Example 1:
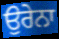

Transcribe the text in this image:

ਉਰੇਨਾ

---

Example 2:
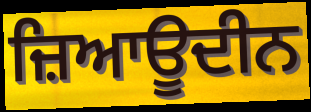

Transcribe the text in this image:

ਜ਼ਿਆਊਦੀਨ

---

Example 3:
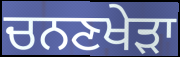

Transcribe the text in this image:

ਚਨਣਖੇੜਾ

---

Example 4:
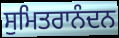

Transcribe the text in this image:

ਸੁਮਿਤਰਾਨੰਦਨ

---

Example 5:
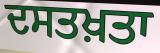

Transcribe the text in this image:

ਦਸਤਖ਼ਤਾ